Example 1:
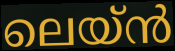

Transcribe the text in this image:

ലെയ്ൻ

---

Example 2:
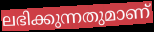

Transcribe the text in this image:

ലഭിക്കുന്നതുമാണ്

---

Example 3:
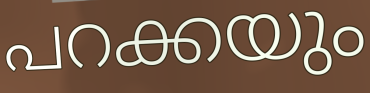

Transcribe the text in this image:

പറക്കയും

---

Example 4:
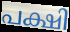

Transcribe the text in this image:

പക്ഷി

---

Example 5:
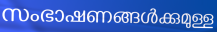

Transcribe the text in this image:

സംഭാഷണങ്ങൾക്കുമുള്ള